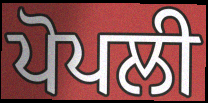
ਪੋਪਲੀ